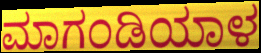
ಮಾಗಂಡಿಯಾಳ